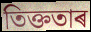
তিক্ততাৰ